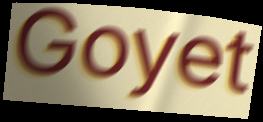
Goyet